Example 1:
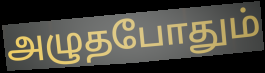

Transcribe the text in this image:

அழுதபோதும்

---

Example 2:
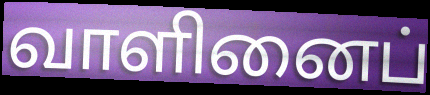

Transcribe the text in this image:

வாளினைப்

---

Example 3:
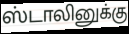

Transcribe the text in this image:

ஸ்டாலினுக்கு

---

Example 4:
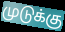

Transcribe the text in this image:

முடுக்கு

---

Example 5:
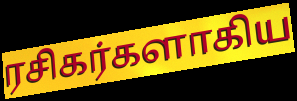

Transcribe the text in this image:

ரசிகர்களாகிய